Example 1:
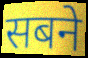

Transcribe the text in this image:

सबने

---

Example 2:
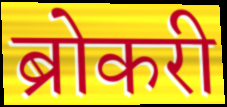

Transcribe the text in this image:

ब्रोकरी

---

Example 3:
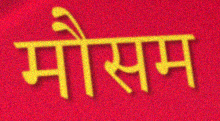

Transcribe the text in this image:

मौसम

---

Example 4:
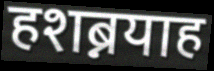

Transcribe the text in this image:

हशब्नयाह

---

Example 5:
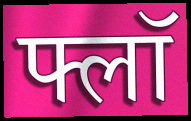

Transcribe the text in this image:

फ्लॉ